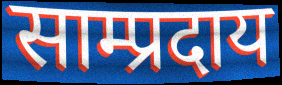
साम्प्रदाय